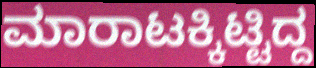
ಮಾರಾಟಕ್ಕಿಟ್ಟಿದ್ದ